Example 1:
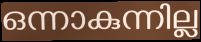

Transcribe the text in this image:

ഒന്നാകുന്നില്ല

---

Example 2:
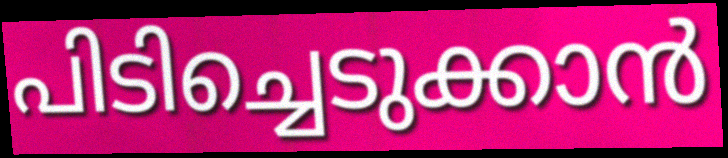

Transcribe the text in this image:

പിടിച്ചെടുക്കാൻ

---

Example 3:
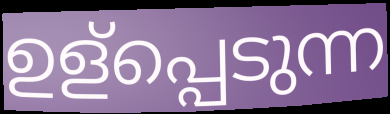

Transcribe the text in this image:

ഉള്പ്പെടുന്ന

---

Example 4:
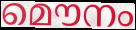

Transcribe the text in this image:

മൌനം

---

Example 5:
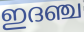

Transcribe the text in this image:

ഇദഞ്ച